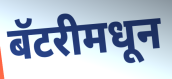
बॅटरीमधून